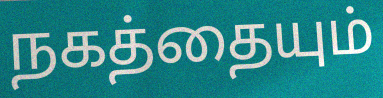
நகத்தையும்